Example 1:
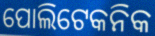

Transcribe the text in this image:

ପୋଲିଟେକନିକ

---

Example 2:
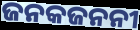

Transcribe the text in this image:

ଜନକଜନନୀ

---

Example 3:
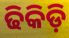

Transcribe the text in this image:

ଢିକିଡ଼ି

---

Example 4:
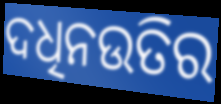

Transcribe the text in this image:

ଦଧିନଉତିର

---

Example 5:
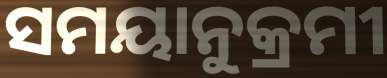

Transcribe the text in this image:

ସମୟାନୁକ୍ରମୀ